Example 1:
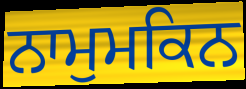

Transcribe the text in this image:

ਨਾਮੁਮਕਿਨ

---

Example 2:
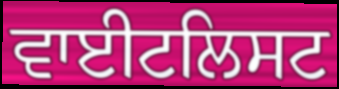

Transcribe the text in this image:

ਵਾਈਟਲਿਸਟ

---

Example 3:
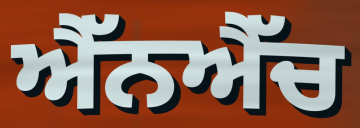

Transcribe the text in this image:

ਐੱਨਐੱਚ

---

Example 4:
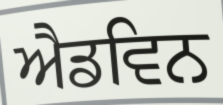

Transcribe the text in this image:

ਐਡਵਿਨ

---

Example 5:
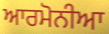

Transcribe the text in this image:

ਆਰਮੋਨੀਆ